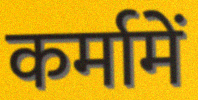
कर्मामें